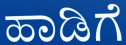
ಹಾಡಿಗೆ